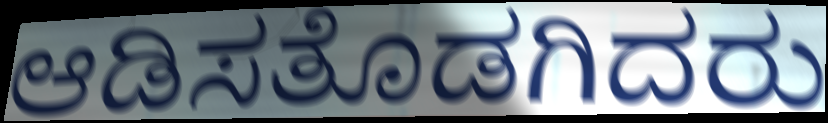
ಆಡಿಸತೊಡಗಿದರು